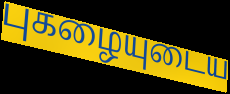
புகழையுடைய